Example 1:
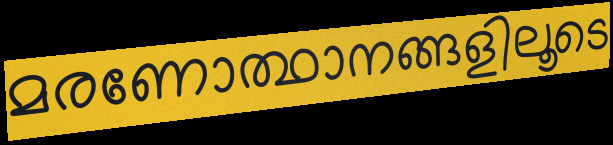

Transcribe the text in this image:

മരണോത്ഥാനങ്ങളിലൂടെ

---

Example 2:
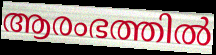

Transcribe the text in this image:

ആരംഭത്തിൽ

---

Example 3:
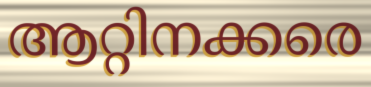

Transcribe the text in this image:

ആറ്റിനക്കരെ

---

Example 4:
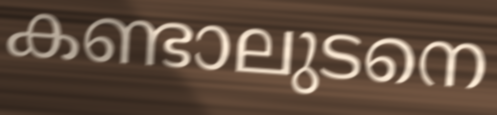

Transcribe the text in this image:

കണ്ടാലുടനെ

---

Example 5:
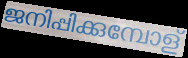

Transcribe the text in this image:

ജനിപ്പിക്കുമ്പോള്